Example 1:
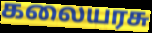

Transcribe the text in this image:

கலையரசு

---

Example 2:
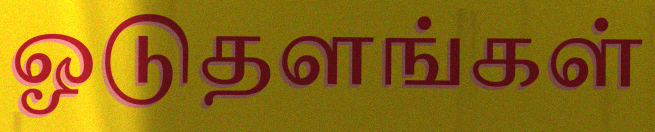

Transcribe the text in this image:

ஓடுதளங்கள்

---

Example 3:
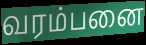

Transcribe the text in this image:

வரம்பனை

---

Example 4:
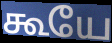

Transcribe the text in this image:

கூயே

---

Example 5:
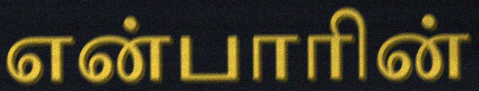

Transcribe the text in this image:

என்பாரின்